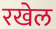
रखेल